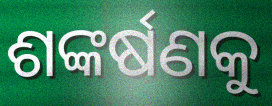
ଶଙ୍କର୍ଷଣକୁ